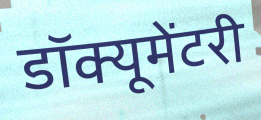
डॉक्यूमेंटरी